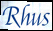
Rhus